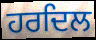
ਹਰਦਿਲ